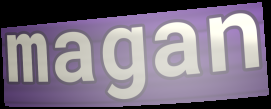
magan